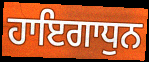
ਹਾਇਗਾਧੁਨ